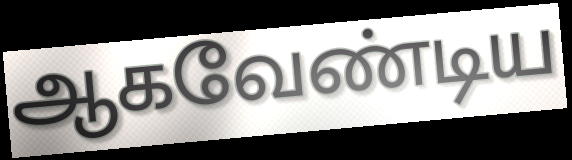
ஆகவேண்டிய